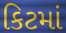
કિટમાં